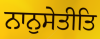
ਨਾਨੁਸੇਤੀਤਿ